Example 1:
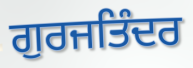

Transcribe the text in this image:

ਗੁਰਜਤਿੰਦਰ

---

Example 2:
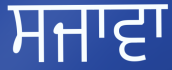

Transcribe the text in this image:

ਸਜਾਵਾ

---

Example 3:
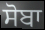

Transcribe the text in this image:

ਸੋਬਾ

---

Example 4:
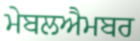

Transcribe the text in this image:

ਮੇਬਲਐਮਬਰ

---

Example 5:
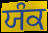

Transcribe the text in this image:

ਯੰਕ